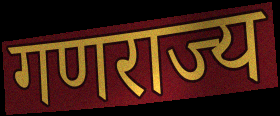
गणराज्य